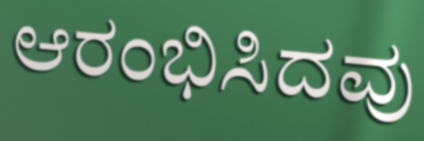
ಆರಂಭಿಸಿದವು